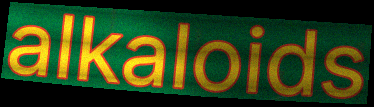
alkaloids